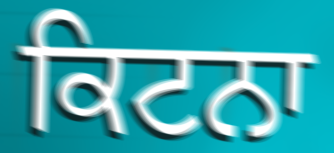
ਕਿਟਨਾ